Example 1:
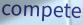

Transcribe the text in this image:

compete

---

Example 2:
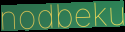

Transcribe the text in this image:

nodbeku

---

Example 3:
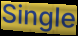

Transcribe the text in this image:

Single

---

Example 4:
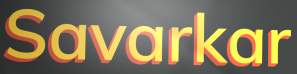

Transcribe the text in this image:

Savarkar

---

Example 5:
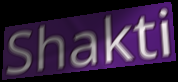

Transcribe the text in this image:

Shakti